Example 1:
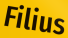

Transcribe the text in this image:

Filius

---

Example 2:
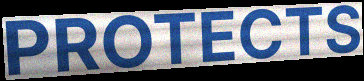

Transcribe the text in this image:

PROTECTS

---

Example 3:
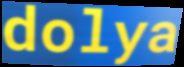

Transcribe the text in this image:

dolya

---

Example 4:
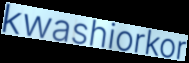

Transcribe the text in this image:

kwashiorkor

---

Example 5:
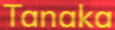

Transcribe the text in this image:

Tanaka